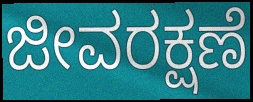
ಜೀವರಕ್ಷಣೆ